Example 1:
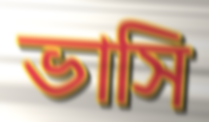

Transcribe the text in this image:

ভাসি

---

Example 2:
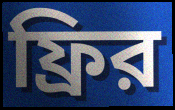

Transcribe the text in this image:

ফ্রির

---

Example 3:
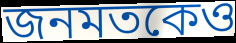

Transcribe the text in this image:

জনমতকেও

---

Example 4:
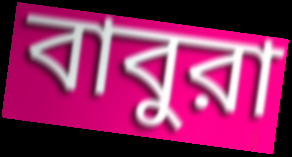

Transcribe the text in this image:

বাবুরা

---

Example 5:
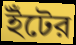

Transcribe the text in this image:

ইঁটের